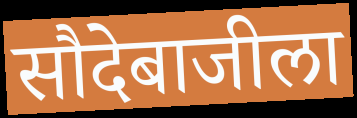
सौदेबाजीला